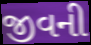
જીવની